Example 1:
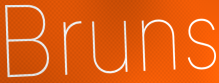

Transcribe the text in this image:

Bruns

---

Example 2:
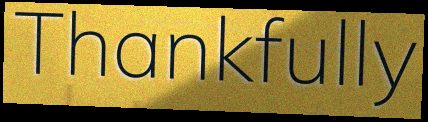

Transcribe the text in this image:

Thankfully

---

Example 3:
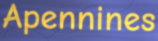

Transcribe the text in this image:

Apennines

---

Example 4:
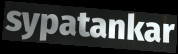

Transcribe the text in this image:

sypatankar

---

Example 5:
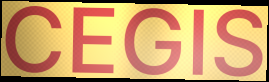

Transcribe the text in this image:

CEGIS